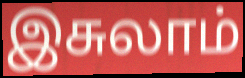
இசுலாம்